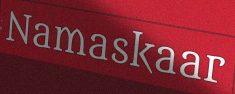
Namaskaar